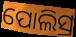
ପୋଲିସ୍ର